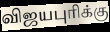
விஜயபுரிக்கு